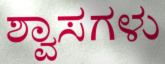
ಶ್ವಾಸಗಳು